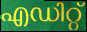
എഡിറ്റ്